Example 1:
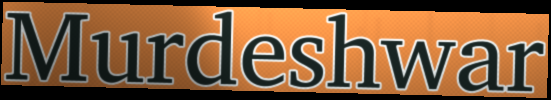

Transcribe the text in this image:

Murdeshwar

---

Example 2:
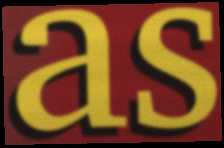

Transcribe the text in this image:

as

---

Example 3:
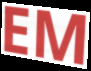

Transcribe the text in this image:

EM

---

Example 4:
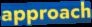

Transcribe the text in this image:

approach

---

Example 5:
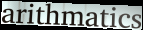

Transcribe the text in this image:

arithmatics